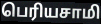
பெரியசாமி